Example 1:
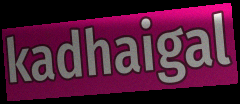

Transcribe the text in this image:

kadhaigal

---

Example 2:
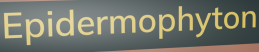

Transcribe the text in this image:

Epidermophyton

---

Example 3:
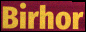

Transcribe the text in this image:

Birhor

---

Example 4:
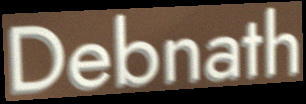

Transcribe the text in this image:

Debnath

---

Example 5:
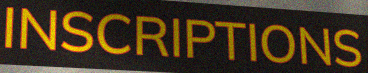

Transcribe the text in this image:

INSCRIPTIONS